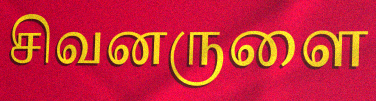
சிவனருளை